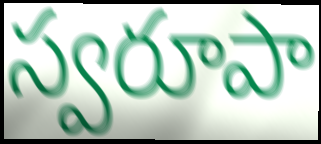
స్వరూపా